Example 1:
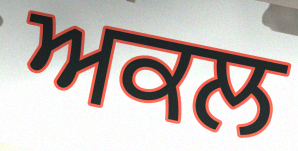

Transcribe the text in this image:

ਅਕਲ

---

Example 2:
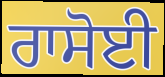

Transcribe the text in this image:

ਰਾਸੋਈ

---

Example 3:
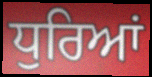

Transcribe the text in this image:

ਧੁਰਿਆਂ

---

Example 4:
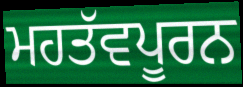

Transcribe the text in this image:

ਮਹਤੱਵਪੂਰਨ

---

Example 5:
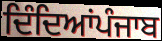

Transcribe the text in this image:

ਦਿੰਦਿਆਂਪੰਜਾਬ